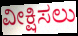
ವೀಕ್ಷಿಸಲು